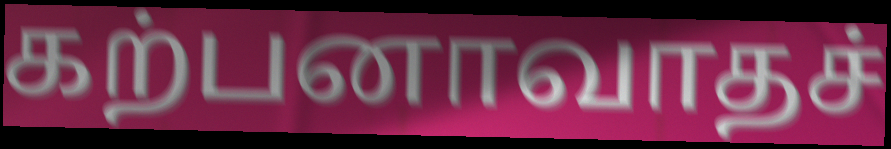
கற்பனாவாதச்